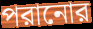
পরানোর